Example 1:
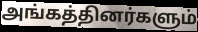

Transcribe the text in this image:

அங்கத்தினர்களும்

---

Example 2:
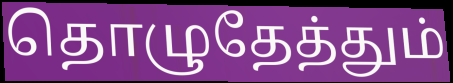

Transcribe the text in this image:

தொழுதேத்தும்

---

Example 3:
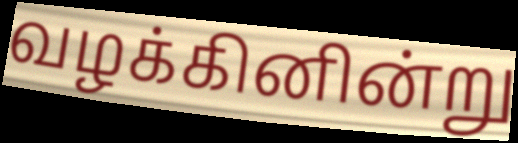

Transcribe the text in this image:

வழக்கினின்று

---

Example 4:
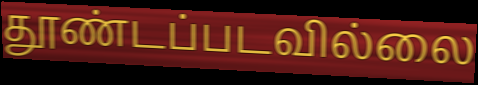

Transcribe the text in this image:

தூண்டப்படவில்லை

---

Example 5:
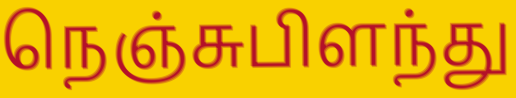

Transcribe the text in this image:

நெஞ்சுபிளந்து